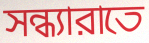
সন্ধ্যারাতে